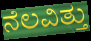
ನೆಲವಿತ್ತು